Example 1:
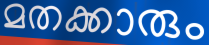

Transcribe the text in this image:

മതക്കാരും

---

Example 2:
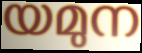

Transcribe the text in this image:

യമുന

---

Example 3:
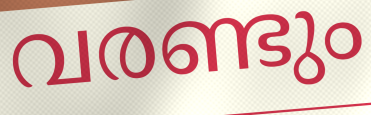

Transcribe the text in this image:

വരണ്ടും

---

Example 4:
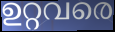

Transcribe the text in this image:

ഉറ്റവരെ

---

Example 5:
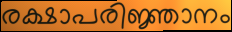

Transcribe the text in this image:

രക്ഷാപരിജ്ഞാനം